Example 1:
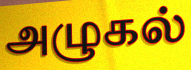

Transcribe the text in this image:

அழுகல்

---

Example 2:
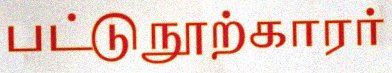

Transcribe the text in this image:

பட்டுநூற்காரர்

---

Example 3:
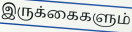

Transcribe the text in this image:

இருக்கைகளும்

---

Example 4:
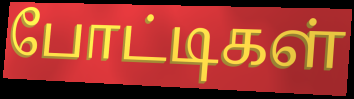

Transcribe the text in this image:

போட்டிகள்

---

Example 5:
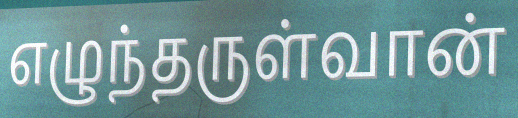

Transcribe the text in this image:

எழுந்தருள்வான்